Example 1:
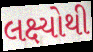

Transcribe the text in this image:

લક્ષ્યોથી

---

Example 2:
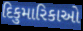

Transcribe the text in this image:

દિકુમારિકાઓ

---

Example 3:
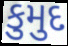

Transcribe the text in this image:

કુમુદ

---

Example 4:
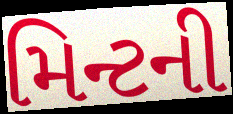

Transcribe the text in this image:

મિન્ટની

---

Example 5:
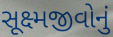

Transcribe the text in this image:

સૂક્ષ્મજીવોનું